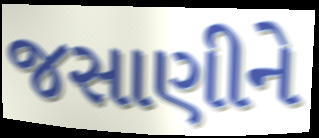
જસાણીને